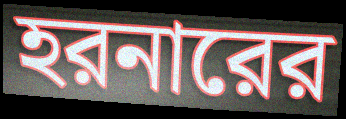
হরনারের